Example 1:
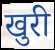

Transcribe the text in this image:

खुरी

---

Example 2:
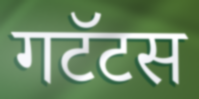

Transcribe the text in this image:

गटॅटस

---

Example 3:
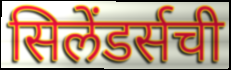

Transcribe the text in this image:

सिलेंडर्सची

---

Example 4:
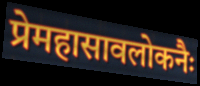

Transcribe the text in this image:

प्रेमहासावलोकनैः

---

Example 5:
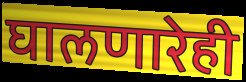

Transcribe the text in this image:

घालणारेही